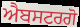
ਐਬਸਟਰਗੋ